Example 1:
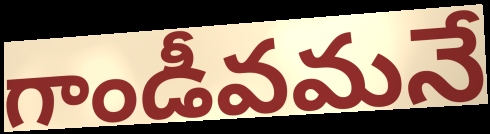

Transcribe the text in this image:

గాండీవమనే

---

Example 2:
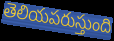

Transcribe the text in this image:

తెలియపరుస్తుంది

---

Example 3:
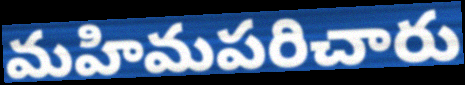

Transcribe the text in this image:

మహిమపరిచారు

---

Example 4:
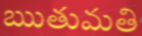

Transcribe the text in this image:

ఋతుమతి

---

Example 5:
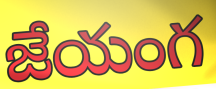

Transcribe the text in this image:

జేయంగ